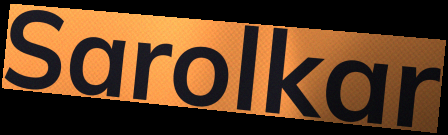
Sarolkar